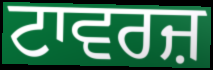
ਟਾਵਰਜ਼